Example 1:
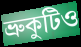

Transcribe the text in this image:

ভ্রুকুটিও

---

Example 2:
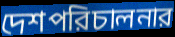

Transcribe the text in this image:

দেশপরিচালনার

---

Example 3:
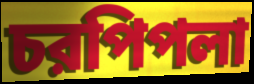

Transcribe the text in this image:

চরপিপলা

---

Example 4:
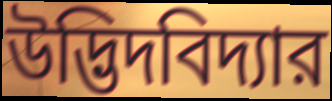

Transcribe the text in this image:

উদ্ভিদবিদ্যার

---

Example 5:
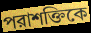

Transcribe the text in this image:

পরাশক্তিকে